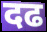
दढ